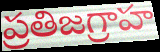
ప్రతిజగ్రాహ